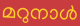
മറുനാൾ